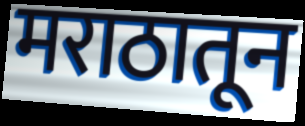
मराठातून